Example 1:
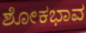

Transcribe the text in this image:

ಶೋಕಭಾವ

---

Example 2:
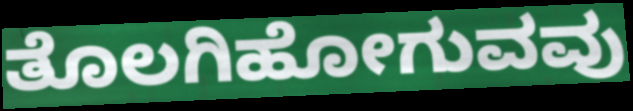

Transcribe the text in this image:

ತೊಲಗಿಹೋಗುವವು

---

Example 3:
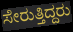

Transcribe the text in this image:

ಸೇರುತ್ತಿದ್ದರು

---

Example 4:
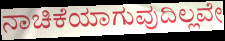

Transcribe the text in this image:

ನಾಚಿಕೆಯಾಗುವುದಿಲ್ಲವೇ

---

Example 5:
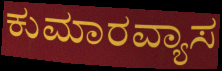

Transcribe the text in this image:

ಕುಮಾರವ್ಯಾಸ